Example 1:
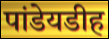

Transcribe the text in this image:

पांडेयडीह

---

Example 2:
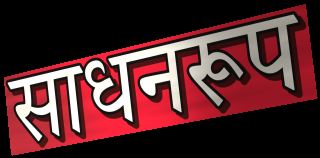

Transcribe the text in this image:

साधनरूप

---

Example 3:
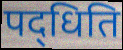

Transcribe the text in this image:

पद्धिति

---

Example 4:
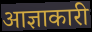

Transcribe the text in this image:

आज्ञाकारी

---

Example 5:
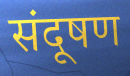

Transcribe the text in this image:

संदूषण